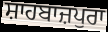
ਸ਼ਾਹਬਾਜ਼ਪੁਰਾ